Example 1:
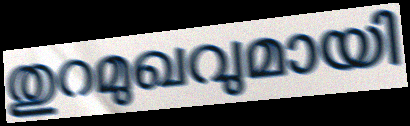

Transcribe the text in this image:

തുറമുഖവുമായി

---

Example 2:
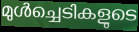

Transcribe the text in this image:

മുൾച്ചെടികളുടെ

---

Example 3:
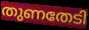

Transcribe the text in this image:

തുണതേടി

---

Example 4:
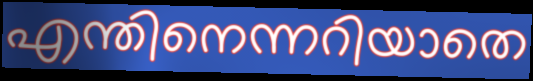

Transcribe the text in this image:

എന്തിനെന്നറിയാതെ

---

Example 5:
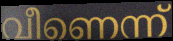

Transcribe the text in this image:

വീണെന്ന്